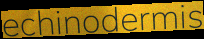
echinodermis